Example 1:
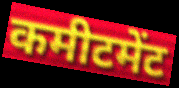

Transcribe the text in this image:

कमीटमेंट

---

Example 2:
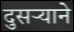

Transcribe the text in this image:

दुसऱ्याने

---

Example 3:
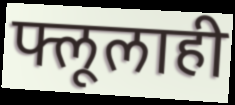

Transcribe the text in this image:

फ्लूलाही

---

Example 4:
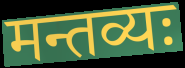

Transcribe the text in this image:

मन्तव्यः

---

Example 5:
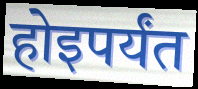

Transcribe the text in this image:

होइपर्यंत